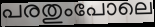
പരതുംപോലെ